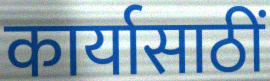
कार्यासाठीं